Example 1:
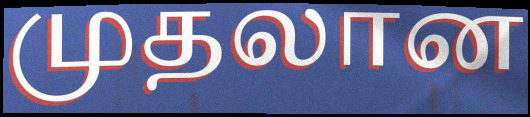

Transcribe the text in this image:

முதலான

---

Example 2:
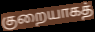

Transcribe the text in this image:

குறையாகத்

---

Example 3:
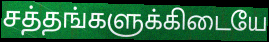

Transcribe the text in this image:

சத்தங்களுக்கிடையே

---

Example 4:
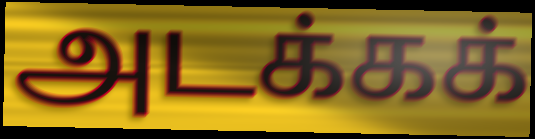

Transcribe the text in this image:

அடக்கக்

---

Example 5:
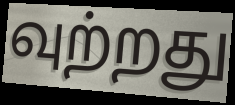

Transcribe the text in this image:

வுற்றது